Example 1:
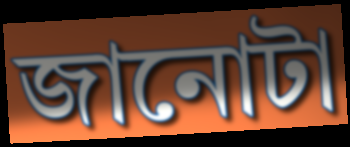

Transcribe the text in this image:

জানোটা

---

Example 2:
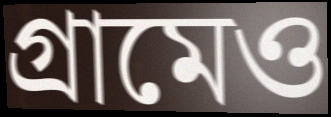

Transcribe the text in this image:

গ্রামেও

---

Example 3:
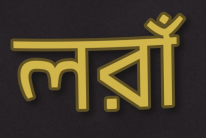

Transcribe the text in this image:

লরাঁ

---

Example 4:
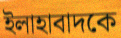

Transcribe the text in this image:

ইলাহাবাদকে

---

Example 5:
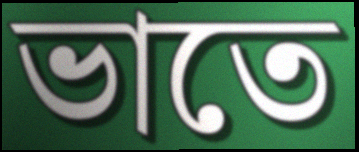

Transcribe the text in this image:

ভাতে